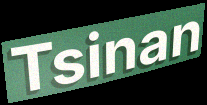
Tsinan